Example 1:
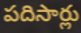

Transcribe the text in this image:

పదిసార్లు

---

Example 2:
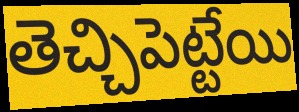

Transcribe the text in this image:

తెచ్చిపెట్టేయి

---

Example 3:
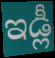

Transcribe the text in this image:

ఇడ్లీ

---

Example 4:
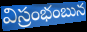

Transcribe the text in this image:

విస్రంభంబున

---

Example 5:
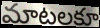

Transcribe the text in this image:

మాటలకూ